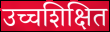
उच्चशिक्षित